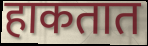
हाकतात